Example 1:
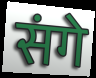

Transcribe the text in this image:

संगे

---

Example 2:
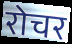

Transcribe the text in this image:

रोचर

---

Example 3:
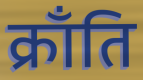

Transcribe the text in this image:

क्राँति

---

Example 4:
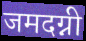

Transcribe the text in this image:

जमदग्नी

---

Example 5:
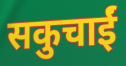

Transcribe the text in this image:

सकुचाईं